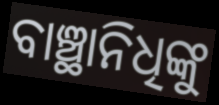
ବାଞ୍ଛାନିଧିଙ୍କୁ